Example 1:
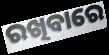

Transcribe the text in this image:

ରଖିବାରେ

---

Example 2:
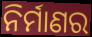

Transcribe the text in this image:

ନିର୍ମାଣର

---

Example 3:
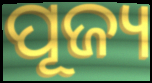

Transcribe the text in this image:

ପୂଜ୍ୟ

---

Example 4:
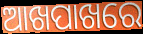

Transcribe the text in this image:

ଆଖପାଖରେ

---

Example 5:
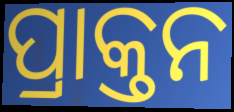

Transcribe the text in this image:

ପ୍ରାକ୍ତନ